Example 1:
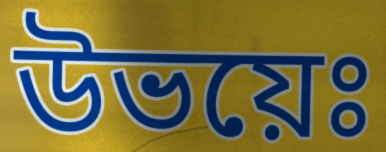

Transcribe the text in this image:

উভয়েঃ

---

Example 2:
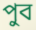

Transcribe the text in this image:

পুব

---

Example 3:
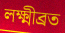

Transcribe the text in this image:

লক্ষ্মীব্রত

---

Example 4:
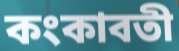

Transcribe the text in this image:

কংকাবতী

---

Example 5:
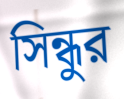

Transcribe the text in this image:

সিন্ধুর